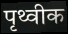
पृथ्वीक